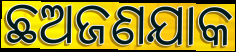
ଛଅଜଣଯାକ